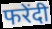
फरेंदी